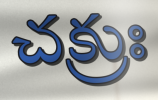
చక్రుః